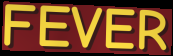
FEVER